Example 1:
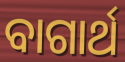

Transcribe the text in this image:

ବାଗାର୍ଥ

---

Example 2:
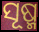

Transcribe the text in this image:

ସୂଷ୍ମ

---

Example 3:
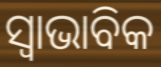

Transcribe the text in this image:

ସ୍ୱାଭାବିକ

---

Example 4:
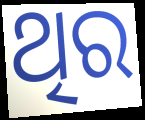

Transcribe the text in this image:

ଥିର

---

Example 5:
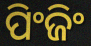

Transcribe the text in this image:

ପିଂଜିଂ